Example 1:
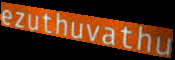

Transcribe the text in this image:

ezuthuvathu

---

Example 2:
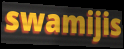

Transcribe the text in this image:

swamijis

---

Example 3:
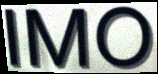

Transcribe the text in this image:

IMO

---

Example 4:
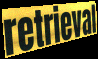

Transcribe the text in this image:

retrieval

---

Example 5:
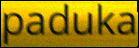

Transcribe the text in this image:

paduka